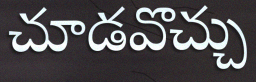
చూడవొచ్చు